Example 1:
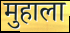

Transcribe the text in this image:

मुहाला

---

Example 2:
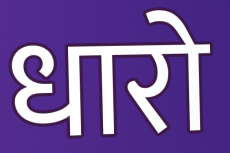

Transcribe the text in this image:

धारो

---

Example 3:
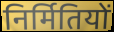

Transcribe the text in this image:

निर्मितियों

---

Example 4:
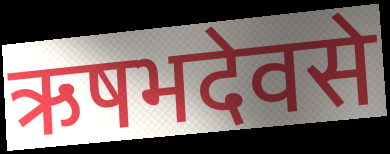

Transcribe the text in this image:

ऋषभदेवसे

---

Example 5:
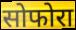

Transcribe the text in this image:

सोफोरा